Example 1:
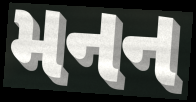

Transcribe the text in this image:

મનન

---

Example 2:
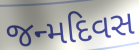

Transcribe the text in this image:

જન્મદિવસ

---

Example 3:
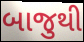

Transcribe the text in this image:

બાજુથી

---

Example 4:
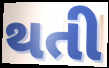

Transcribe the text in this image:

થતી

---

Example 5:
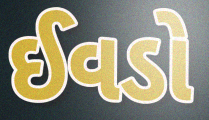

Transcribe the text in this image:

ઈવડો